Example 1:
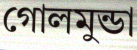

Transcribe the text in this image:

গোলমুন্ডা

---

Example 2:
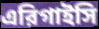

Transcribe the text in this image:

এরিগাইসি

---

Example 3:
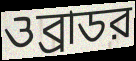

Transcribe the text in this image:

ওব্রাডর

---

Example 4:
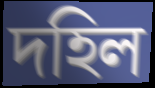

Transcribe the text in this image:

দহিল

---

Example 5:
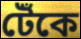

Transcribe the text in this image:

টেঁকে